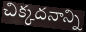
చిక్కదనాన్ని